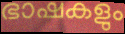
ഭാഷകളും